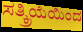
ಸತ್ಕ್ರಿಯೆಯಿಂದ